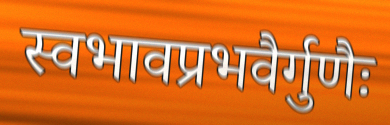
स्वभावप्रभवैर्गुणैः